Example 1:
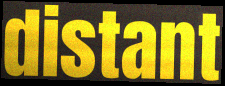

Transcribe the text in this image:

distant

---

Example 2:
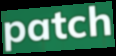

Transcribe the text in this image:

patch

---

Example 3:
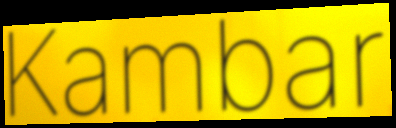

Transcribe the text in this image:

Kambar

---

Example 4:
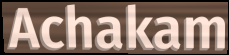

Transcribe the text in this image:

Achakam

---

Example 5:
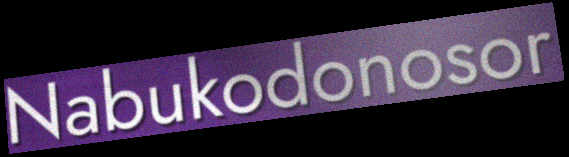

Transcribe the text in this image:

Nabukodonosor